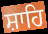
ਸ਼ਾਹਿ